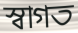
স্বাগত